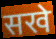
सखे